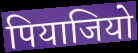
पियाजियो